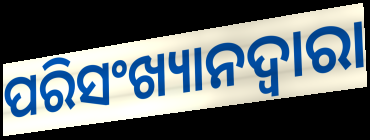
ପରିସଂଖ୍ୟାନଦ୍ଵାରା